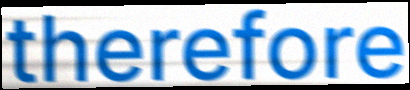
therefore